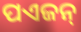
ପଏଜନ୍